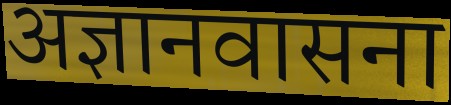
अज्ञानवासना